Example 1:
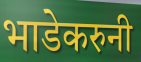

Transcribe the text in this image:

भाडेकरुनी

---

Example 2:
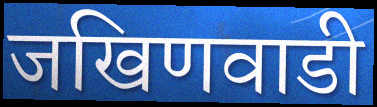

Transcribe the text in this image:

जखिणवाडी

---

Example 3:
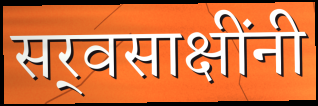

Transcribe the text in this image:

सर्वसाक्षींनी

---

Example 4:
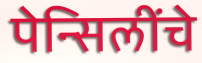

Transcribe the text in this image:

पेन्सिलींचे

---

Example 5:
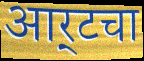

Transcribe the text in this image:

आर्टचा